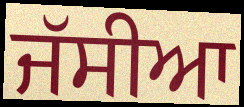
ਜੱਸੀਆ